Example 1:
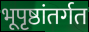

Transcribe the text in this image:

भूपृष्ठांतर्गत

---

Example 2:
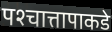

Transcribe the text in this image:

पश्चात्तापाकडे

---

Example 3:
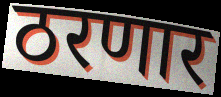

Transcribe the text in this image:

ठरणार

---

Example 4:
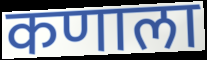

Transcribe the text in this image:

कणाला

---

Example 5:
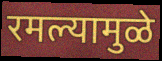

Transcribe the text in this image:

रमल्यामुळे